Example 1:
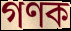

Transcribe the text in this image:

গণক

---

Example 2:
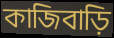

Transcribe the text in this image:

কাজিবাড়ি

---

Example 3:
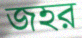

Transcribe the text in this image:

জহর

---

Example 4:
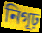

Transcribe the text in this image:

নিগূঢ়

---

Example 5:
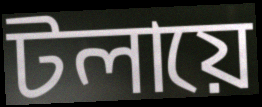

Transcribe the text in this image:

টলায়ে